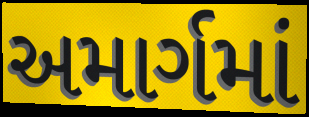
અમાર્ગમાં